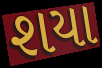
શયા